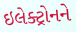
ઇલેક્ટ્રોનને